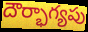
దౌర్భాగ్యపు